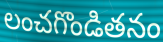
లంచగొండితనం